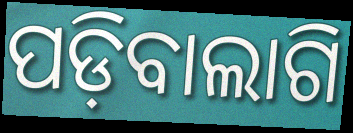
ପଡ଼ିବାଲାଗି